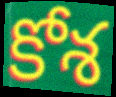
కోశ